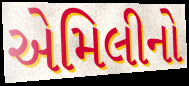
એમિલીનો